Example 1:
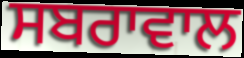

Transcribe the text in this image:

ਸਬਰਾਵਾਲ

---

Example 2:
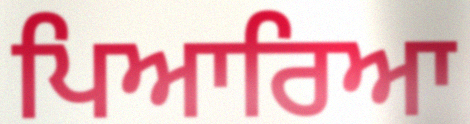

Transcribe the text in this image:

ਪਿਆਰਿਆ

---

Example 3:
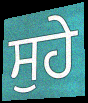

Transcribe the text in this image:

ਸੁਹੇ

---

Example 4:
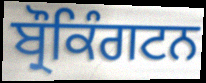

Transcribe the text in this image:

ਬ੍ਰੌਕਿੰਗਟਨ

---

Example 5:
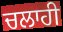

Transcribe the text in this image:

ਚਲਾਹੀ